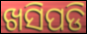
ଖସିପଡି